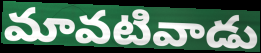
మావటివాడు